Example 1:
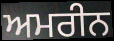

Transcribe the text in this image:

ਅਮਰੀਨ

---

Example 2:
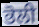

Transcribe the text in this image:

ਭੋਲੀ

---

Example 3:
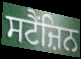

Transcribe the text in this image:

ਸਟੈਂਜ਼ਿਨ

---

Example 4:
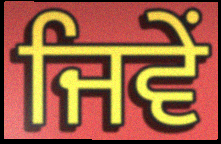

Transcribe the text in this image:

ਜਿਵੇਂ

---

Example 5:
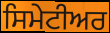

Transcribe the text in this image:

ਸਿਮੇਟੀਅਰ